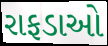
રાફડાઓ